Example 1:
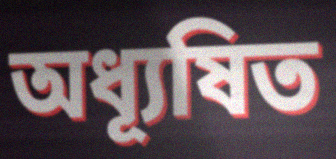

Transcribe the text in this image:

অধ্যূষিত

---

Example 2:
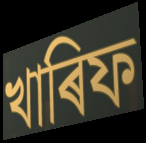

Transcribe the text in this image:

খাৰিফ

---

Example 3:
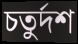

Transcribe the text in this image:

চতুৰ্দশ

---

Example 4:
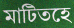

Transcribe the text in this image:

মাটিতহে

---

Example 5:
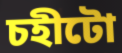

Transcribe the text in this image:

চহীটো